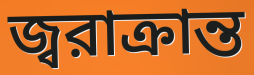
জ্বরাক্রান্ত